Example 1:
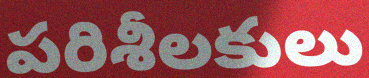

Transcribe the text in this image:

పరిశీలకులు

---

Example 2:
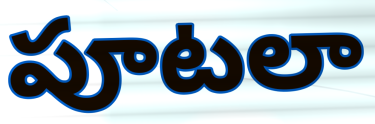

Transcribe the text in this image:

పూటలా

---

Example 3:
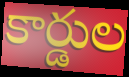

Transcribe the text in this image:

కార్డుల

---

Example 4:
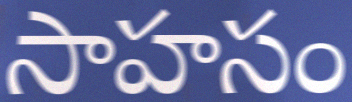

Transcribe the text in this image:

సాహసం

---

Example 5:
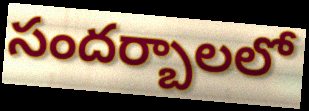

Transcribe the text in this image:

సందర్బాలలో